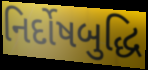
નિર્દોષબુદ્ધિ